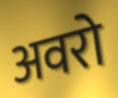
अवरो